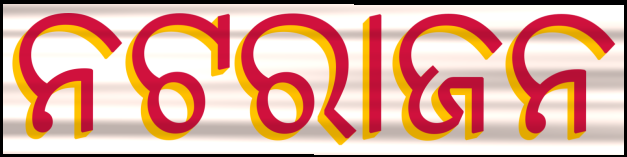
ନଟରାଜନ